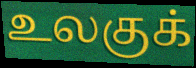
உலகுக்